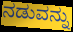
ನಡುವನ್ನು